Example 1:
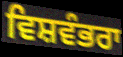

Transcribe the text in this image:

ਵਿਸ਼ਵੰਭਰਾ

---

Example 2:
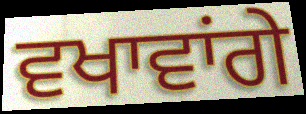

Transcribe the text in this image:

ਵਖਾਵਾਂਗੇ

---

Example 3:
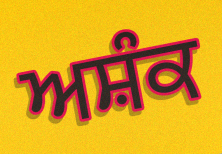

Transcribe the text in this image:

ਅਸ਼ੰਕ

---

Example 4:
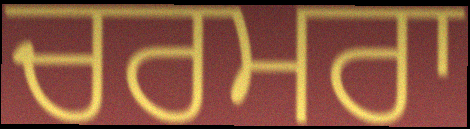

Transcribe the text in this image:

ਚਰਮਰਾ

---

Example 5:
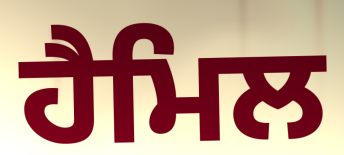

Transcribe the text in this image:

ਹੈਮਿਲ